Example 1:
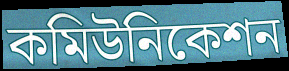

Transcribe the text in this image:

কমিউনিকেশন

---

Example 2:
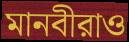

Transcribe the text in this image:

মানবীরাও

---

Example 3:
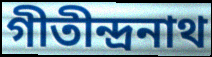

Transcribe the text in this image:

গীতীন্দ্রনাথ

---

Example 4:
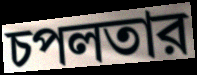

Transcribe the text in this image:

চপলতার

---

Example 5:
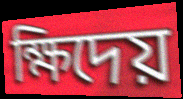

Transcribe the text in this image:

ক্ষিদেয়